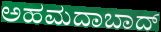
ಅಹಮದಾಬಾದ್